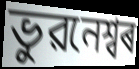
ভুৱনেশ্বৰ